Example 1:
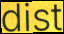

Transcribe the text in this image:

dist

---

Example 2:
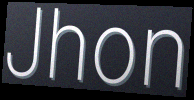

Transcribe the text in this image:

Jhon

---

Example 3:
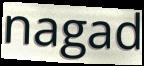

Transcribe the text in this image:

nagad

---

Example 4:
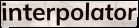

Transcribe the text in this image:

interpolator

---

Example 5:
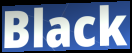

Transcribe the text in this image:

Black